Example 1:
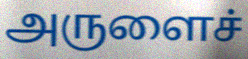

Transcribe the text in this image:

அருளைச்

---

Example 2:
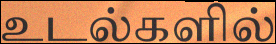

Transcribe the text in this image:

உடல்களில்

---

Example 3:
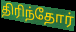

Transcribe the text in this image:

திரிந்தோர்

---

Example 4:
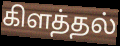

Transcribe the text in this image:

கிளத்தல்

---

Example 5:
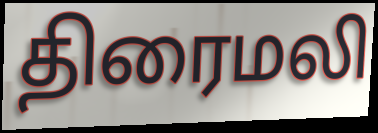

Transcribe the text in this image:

திரைமலி